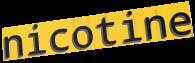
nicotine